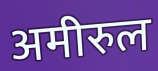
अमीरुल